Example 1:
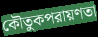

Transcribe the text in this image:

কৌতুকপরায়ণতা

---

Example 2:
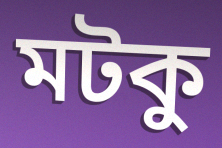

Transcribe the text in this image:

মটকু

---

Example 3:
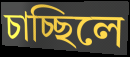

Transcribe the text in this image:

চাচ্ছিলে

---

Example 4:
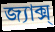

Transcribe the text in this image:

জ্যাক্স্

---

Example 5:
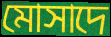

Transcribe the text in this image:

মোসাদে